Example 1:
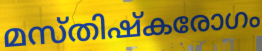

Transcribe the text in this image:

മസ്തിഷ്കരോഗം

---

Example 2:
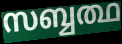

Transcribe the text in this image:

സബ്ബത്ഥ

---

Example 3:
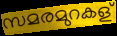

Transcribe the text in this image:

സമരമുറകള്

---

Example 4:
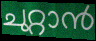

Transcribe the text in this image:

ചുറ്റാൻ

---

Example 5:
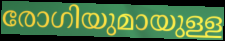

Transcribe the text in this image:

രോഗിയുമായുള്ള